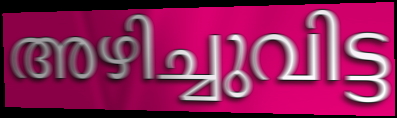
അഴിച്ചുവിട്ട